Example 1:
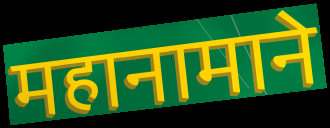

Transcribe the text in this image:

महानामाने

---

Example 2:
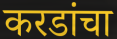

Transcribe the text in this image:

करडांचा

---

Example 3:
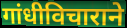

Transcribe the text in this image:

गांधीविचाराने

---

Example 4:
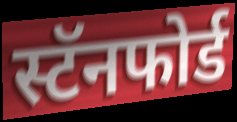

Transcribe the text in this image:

स्टॅनफोर्ड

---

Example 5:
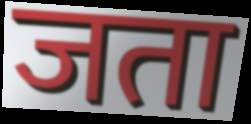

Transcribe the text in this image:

जता